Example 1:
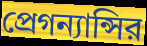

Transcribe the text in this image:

প্রেগন্যান্সির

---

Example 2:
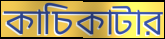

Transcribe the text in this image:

কাচিকাটার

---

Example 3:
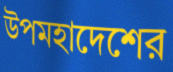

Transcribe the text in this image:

উপমহাদেশের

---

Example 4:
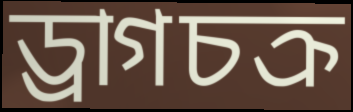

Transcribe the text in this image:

ড্রাগচক্র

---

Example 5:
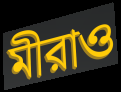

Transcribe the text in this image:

মীরাও